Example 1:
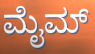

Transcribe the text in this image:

ಮೈಮ್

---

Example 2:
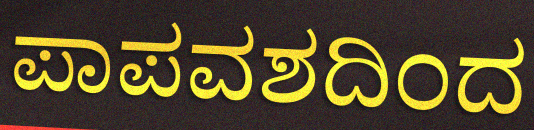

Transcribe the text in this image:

ಪಾಪವಶದಿಂದ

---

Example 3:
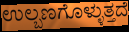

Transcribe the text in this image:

ಉಲ್ಬಣಗೊಳ್ಳುತ್ತದೆ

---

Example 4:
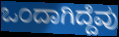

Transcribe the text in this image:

ಒಂದಾಗಿದ್ದೆವು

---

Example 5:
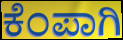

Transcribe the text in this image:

ಕೆಂಪಾಗಿ